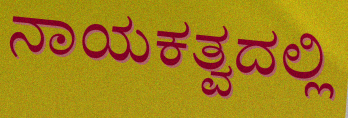
ನಾಯಕತ್ವದಲ್ಲಿ